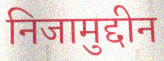
निजामुद्दीन